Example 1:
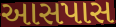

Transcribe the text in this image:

આસપાસ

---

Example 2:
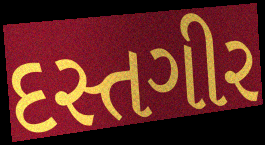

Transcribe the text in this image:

દસ્તગીર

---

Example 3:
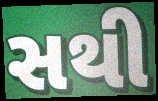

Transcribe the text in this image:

સથી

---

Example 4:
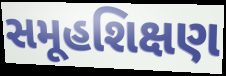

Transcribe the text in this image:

સમૂહશિક્ષણ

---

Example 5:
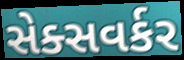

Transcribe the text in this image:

સેક્સવર્કર